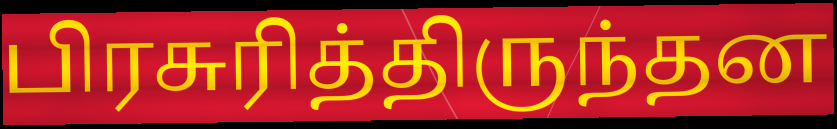
பிரசுரித்திருந்தன